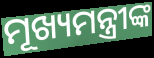
ମୂଖ୍ୟମନ୍ତ୍ରୀଙ୍କ